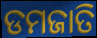
ଡମଜାତି